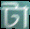
টা